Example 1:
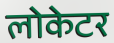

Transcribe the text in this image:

लोकेटर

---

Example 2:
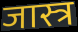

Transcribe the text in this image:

जास्त्र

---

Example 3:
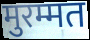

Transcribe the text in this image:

मुरम्मत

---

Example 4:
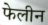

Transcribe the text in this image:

फेलीन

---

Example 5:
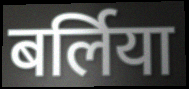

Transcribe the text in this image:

बर्लिया